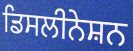
ਡਿਸਲੀਨੇਸ਼ਨ